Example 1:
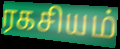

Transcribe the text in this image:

ரகசியம்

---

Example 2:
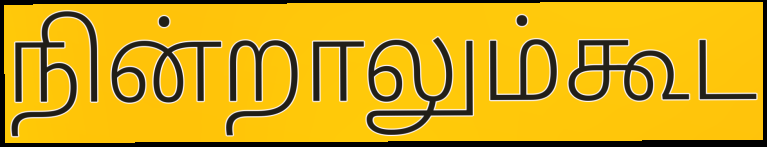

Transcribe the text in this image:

நின்றாலும்கூட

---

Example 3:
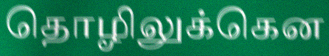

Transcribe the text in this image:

தொழிலுக்கென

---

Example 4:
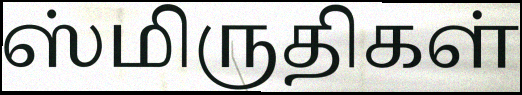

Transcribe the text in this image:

ஸ்மிருதிகள்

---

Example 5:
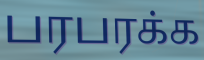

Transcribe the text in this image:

பரபரக்க